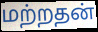
மற்றதன்